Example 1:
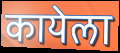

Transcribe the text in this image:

कायेला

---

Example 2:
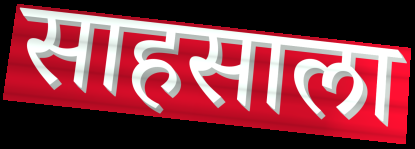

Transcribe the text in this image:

साहसाला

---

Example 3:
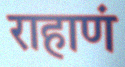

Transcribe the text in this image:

राहाणं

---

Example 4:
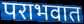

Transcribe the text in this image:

पराभवात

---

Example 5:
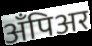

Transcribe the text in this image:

अँपिअर